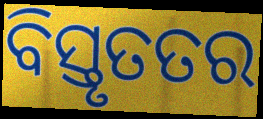
ବିସ୍ତୃତତର